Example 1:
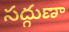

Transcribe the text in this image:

సద్గుణా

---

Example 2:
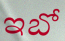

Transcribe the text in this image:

ఇబో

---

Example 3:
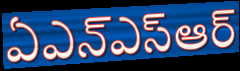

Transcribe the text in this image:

ఏఎన్ఎస్ఆర్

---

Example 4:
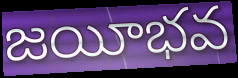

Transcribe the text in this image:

జయీభవ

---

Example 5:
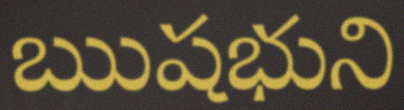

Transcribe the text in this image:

ఋషభుని